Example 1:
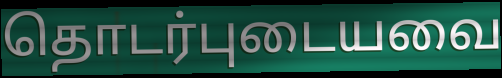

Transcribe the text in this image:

தொடர்புடையவை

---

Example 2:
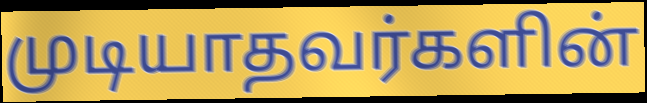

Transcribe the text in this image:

முடியாதவர்களின்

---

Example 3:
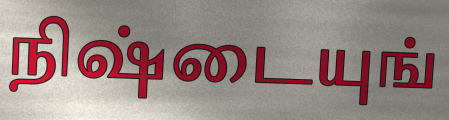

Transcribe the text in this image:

நிஷ்டையுங்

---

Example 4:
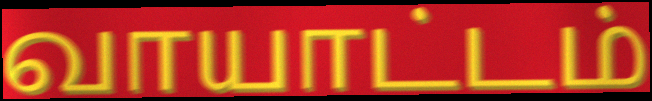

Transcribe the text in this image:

வாயாட்டம்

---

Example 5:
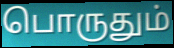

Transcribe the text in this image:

பொருதும்